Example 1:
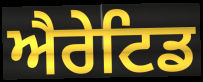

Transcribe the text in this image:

ਐਰੇਟਿਡ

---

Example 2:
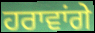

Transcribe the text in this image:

ਹਰਾਵਾਂਗੇ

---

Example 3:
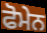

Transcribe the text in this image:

ਫੋਮੇਨ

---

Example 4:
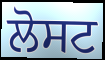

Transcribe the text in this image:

ਲੋਸਟ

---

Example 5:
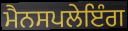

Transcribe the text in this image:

ਮੈਨਸਪਲੇਇੰਗ